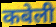
कबेली